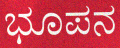
ಭೂಪನ